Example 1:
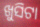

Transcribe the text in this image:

ଖୁସିଟା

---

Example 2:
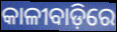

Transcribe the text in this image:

କାଳୀବାଡ଼ିରେ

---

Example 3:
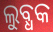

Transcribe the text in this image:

ଲୁବ୍ଧକ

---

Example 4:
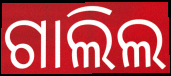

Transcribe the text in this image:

ଗାଲିଲ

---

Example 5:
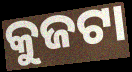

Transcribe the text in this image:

କୁଜଟା